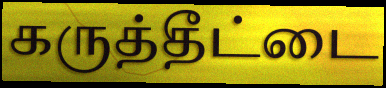
கருத்தீட்டை